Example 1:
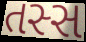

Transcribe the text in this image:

તસ્સ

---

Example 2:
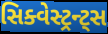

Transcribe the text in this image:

સિક્વેસ્ટ્રન્ટ્સ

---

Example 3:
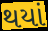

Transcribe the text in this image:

થયાં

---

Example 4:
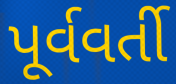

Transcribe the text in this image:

પૂર્વવર્તી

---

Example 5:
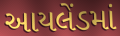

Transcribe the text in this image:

આયલેંડમાં